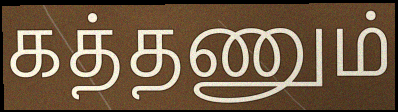
கத்தணும்